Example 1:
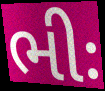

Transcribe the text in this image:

ભીઃ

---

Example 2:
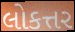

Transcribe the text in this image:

લોકત્તર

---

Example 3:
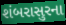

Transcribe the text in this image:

શંબરાસુરના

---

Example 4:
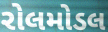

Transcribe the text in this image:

રોલમોડલ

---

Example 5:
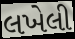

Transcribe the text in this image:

લખેલી